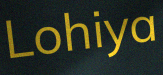
Lohiya